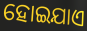
ହୋଇଯାଏ